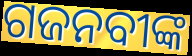
ଗଜନବୀଙ୍କ